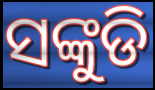
ସଙ୍କୁଡି